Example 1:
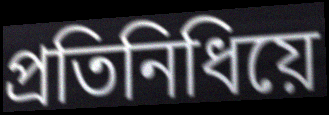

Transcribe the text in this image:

প্ৰতিনিধিয়ে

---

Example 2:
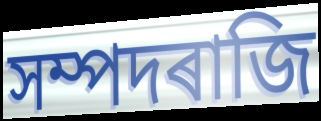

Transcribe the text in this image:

সম্পদৰাজি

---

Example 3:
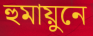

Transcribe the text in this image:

হুমায়ুনে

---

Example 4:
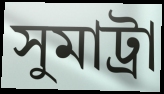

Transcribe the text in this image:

সুমাট্ৰা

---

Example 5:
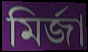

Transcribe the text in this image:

মিৰ্জা